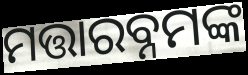
ମତ୍ତାରବ୍ନମଙ୍କ